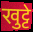
खुट्टे